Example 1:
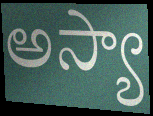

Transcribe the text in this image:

అస్యా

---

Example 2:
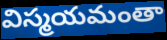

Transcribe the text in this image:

విస్మయమంతా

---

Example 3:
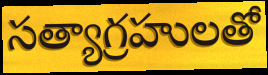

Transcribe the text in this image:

సత్యాగ్రహులతో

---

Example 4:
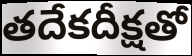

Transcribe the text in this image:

తదేకదీక్షతో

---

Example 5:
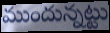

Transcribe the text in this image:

ముందున్నట్టు